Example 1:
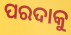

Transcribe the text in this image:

ପରଦାକୁ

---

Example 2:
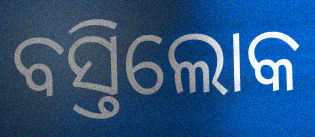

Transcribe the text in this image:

ବସ୍ତିଲୋକ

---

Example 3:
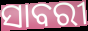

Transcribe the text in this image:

ସାବରୀ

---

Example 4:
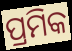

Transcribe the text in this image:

ପ୍ରମିକ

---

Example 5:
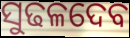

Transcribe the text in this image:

ସୁଢଳଦେବ